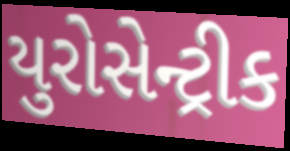
યુરોસેન્ટ્રીક